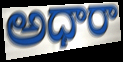
అధారా